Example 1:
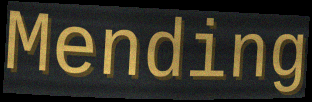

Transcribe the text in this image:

Mending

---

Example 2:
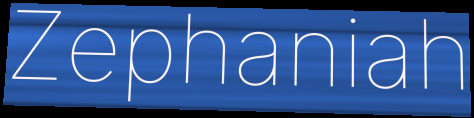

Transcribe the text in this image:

Zephaniah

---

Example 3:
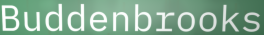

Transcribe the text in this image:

Buddenbrooks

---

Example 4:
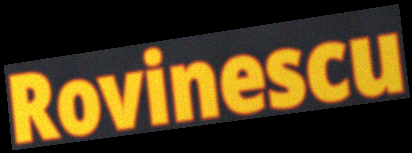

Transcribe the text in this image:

Rovinescu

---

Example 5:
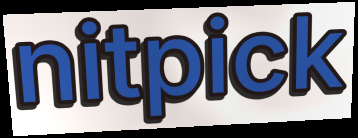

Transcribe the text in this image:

nitpick